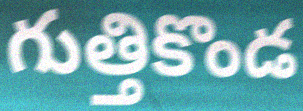
గుత్తికొండ